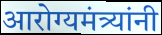
आरोग्यमंत्र्यांनी